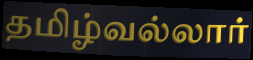
தமிழ்வல்லார்